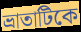
ভ্রাতাটিকে